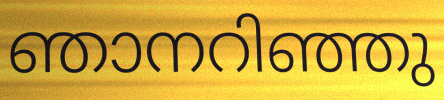
ഞാനറിഞ്ഞു